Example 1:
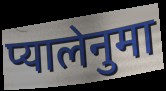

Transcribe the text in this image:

प्यालेनुमा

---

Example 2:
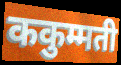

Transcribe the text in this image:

ककुम्मती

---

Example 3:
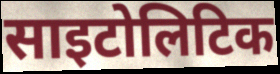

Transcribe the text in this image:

साइटोलिटिक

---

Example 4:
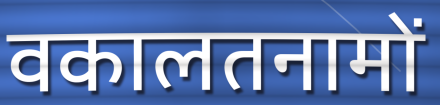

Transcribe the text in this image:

वकालतनामों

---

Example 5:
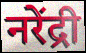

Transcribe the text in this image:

नरेंद्री